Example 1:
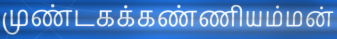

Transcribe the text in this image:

முண்டகக்கண்ணியம்மன்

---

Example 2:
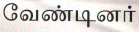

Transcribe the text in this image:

வேண்டினர்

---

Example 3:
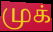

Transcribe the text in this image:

முக்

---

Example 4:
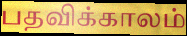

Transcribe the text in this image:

பதவிக்காலம்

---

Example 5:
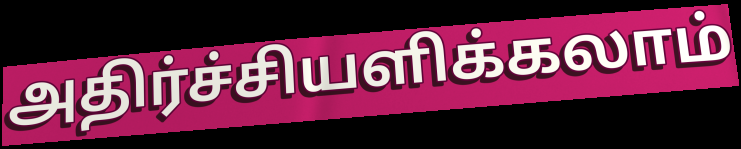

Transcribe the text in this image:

அதிர்ச்சியளிக்கலாம்